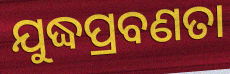
ଯୁଦ୍ଧପ୍ରବଣତା